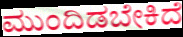
ಮುಂದಿಡಬೇಕಿದೆ